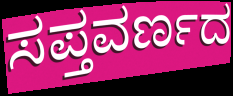
ಸಪ್ತವರ್ಣದ